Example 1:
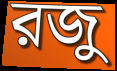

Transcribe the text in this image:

রজু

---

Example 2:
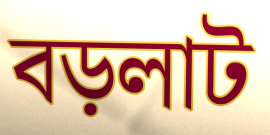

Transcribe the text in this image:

বড়লাট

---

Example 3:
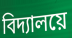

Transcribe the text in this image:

বিদ্যালয়ে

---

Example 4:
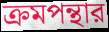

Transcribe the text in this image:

ক্রমপন্থার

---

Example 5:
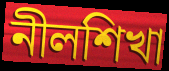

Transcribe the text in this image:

নীলশিখা